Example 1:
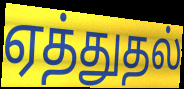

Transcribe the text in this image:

ஏத்துதல்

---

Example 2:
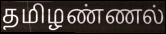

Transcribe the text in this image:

தமிழண்ணல்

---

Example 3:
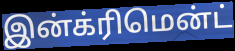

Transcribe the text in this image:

இன்க்ரிமென்ட்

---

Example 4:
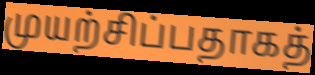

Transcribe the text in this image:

முயற்சிப்பதாகத்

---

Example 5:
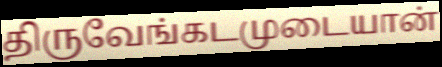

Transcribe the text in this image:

திருவேங்கடமுடையான்